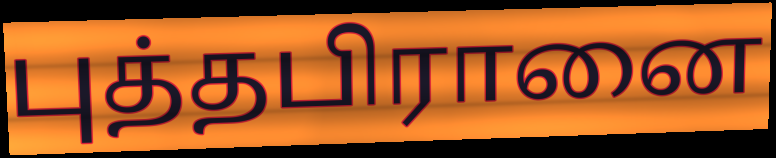
புத்தபிரானை